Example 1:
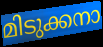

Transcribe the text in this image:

മിടുക്കനാ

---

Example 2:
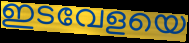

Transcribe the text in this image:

ഇടവേളയെ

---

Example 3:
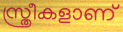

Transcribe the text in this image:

സ്ത്രീകളാണ്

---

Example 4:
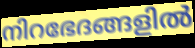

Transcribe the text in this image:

നിറഭേദങ്ങളിൽ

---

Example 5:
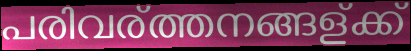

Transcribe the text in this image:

പരിവര്ത്തനങ്ങള്ക്ക്